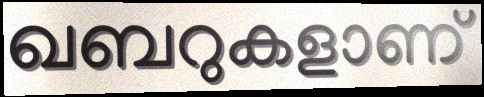
ഖബറുകളാണ്